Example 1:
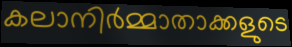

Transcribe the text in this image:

കലാനിർമ്മാതാക്കളുടെ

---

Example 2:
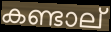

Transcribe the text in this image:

കണ്ടാല്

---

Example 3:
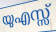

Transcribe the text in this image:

യുഎസ്സ്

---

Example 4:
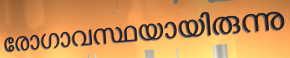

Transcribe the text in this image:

രോഗാവസ്ഥയായിരുന്നു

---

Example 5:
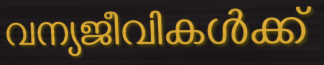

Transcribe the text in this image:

വന്യജീവികൾക്ക്